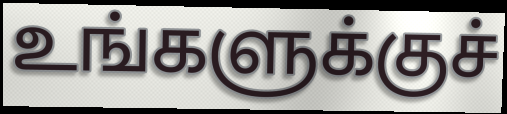
உங்களுக்குச்